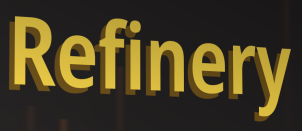
Refinery